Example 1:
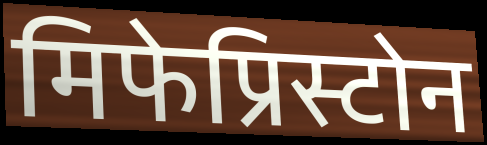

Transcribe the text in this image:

मिफेप्रिस्टोन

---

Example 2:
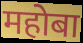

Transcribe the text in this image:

महोबा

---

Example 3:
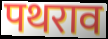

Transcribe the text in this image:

पथराव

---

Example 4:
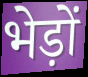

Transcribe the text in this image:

भेड़ों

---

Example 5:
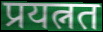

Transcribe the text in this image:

प्रयत्नत